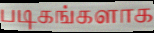
படிகங்களாக